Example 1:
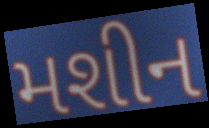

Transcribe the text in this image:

મશીન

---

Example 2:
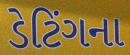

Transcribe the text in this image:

ડેટિંગના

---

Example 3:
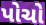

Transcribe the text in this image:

પોચો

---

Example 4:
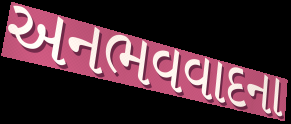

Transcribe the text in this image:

અનભવવાદના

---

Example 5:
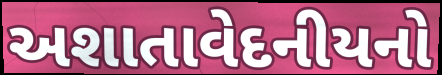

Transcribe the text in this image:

અશાતાવેદનીયનો